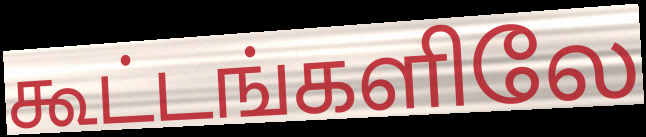
கூட்டங்களிலே